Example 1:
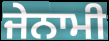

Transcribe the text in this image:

ਜੇਨਾਮੀ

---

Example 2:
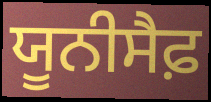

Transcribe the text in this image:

ਯੂਨੀਸੈਫ਼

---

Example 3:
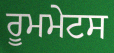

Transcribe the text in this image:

ਰੂਮਮੇਟਸ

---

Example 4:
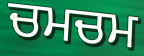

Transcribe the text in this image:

ਚਮਚਮ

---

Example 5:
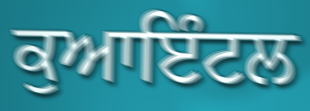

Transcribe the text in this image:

ਕੁਆਇੰਟਲ